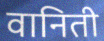
वानिती